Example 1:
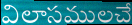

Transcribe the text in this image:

విలాసములచే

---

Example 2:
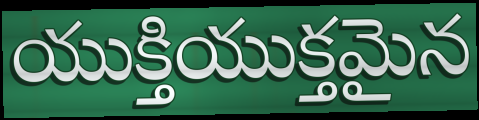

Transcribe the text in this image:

యుక్తియుక్తమైన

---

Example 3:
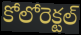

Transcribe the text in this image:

కోలోరెక్టల్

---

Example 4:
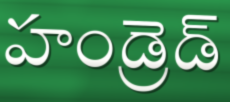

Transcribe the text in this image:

హండ్రెడ్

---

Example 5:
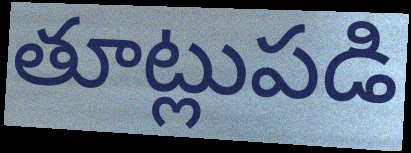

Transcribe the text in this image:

తూట్లుపడి